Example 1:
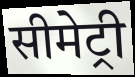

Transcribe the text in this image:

सीमेट्री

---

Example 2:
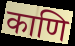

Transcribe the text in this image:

काणि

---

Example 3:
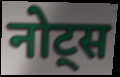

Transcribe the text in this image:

नोट्‌स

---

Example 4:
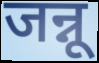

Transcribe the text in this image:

जन्नू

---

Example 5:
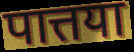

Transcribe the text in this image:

पात्तया